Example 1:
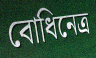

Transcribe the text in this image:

বোধিনেত্ৰ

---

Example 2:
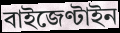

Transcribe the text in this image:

বাইজেণ্টাইন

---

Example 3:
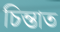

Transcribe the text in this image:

চিন্তাত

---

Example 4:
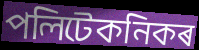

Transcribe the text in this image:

পলিটেকনিকৰ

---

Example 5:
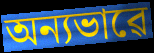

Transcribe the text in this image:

অন্যভাৱে